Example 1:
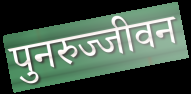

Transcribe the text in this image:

पुनरुज्जीवन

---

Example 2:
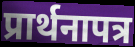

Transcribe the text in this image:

प्रार्थनापत्र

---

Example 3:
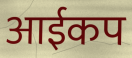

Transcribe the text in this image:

आईकप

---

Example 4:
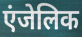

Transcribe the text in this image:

एंजेलिक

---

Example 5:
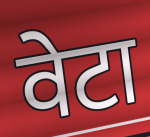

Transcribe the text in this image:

वेटा